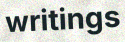
writings